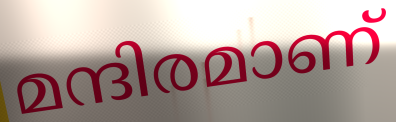
മന്ദിരമാണ്